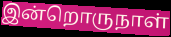
இன்றொருநாள்